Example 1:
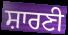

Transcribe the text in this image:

ਸ਼ਾਰਣੀ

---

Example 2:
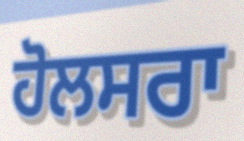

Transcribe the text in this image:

ਹੋਲਸਰਾ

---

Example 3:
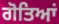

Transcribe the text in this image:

ਗੋਤਿਆਂ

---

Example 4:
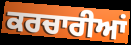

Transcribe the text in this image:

ਕਰਚਾਰੀਆਂ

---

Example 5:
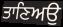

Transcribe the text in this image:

ਤਾਣਿਅਉ